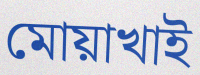
মোয়াখাই